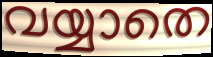
വയ്യാതെ